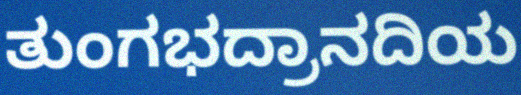
ತುಂಗಭದ್ರಾನದಿಯ